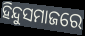
ହିନ୍ଦୁସମାଜରେ